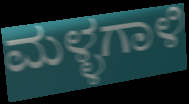
ಮಳ್ಳಗಾಳಿ